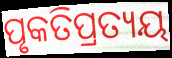
ପୃକତିପ୍ରତ୍ୟୟ